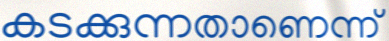
കടക്കുന്നതാണെന്ന്